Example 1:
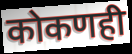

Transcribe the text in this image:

कोकणही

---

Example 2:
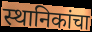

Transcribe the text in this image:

स्थानिकांचा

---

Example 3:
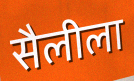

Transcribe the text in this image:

सैलीला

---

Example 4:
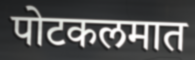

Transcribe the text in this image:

पोटकलमात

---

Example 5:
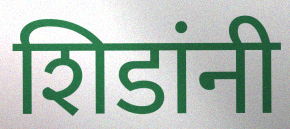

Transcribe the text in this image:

शिडांनी